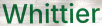
Whittier